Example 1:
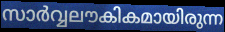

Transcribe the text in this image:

സാർവ്വലൗകികമായിരുന്ന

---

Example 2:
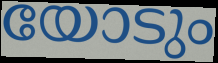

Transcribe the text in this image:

യോടും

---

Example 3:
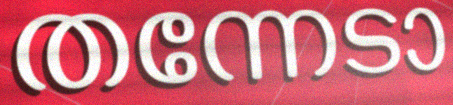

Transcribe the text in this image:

തന്നേടാ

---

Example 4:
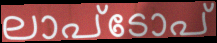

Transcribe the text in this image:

ലാപ്ടോപ്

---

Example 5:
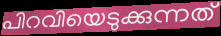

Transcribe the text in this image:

പിറവിയെടുക്കുന്നത്